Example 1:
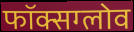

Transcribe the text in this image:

फॉक्सग्लोव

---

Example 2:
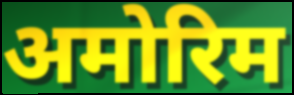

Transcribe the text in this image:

अमोरिम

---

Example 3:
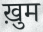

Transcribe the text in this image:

ख़ुम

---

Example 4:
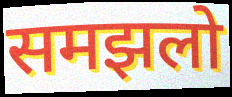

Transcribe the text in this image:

समझलो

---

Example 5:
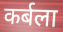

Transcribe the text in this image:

कर्बला